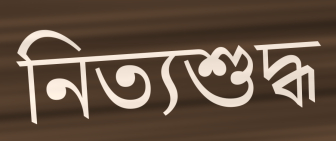
নিত্যশুদ্ধ